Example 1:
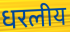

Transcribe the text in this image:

धरलीय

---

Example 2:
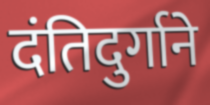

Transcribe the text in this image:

दंतिदुर्गाने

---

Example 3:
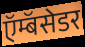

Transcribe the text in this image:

ऍम्बॅसेडर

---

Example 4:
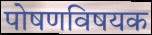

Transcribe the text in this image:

पोषणविषयक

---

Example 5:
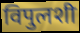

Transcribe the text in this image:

विपुलशी